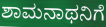
ಶಾಮನಾಥನಿಗೆ